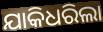
ଯାକିଧରିଲା